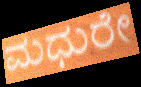
ಮಧುರೇ